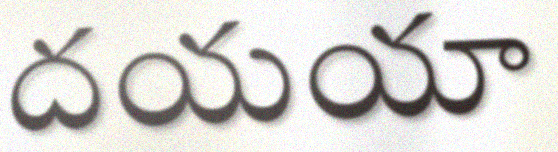
దయయా